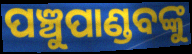
ପଞ୍ଚୁପାଣ୍ଡବଙ୍କୁ